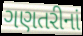
ગણતરીનાં